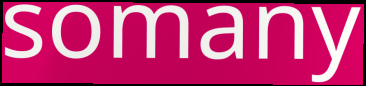
somany